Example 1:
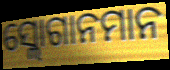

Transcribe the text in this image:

ସ୍ଲୋଗାନମାନ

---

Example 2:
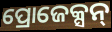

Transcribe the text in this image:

ପ୍ରୋଜେକ୍ସନ୍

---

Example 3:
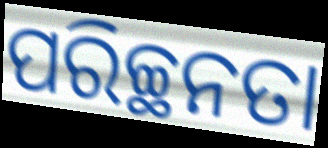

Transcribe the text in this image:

ପରିଚ୍ଛନତା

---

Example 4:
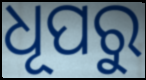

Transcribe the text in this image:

ଧୂପରୁ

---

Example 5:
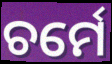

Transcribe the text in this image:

ଚର୍ମେ